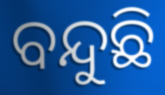
ବନ୍ଦୁଛି